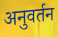
अनुवर्तन